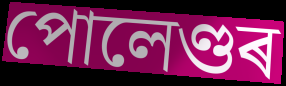
পোলেণ্ডৰ